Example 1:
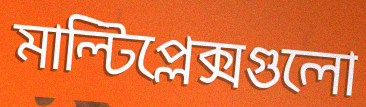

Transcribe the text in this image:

মাল্টিপ্লেক্সগুলো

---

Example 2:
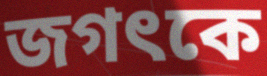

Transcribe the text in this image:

জগৎকে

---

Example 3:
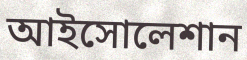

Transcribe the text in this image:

আইসোলেশান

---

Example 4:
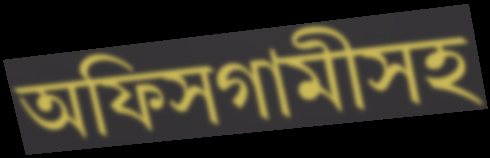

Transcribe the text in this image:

অফিসগামীসহ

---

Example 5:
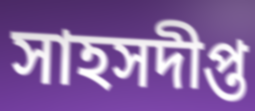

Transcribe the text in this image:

সাহসদীপ্ত